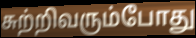
சுற்றிவரும்போது